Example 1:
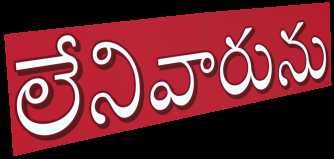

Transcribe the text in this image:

లేనివారును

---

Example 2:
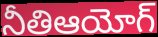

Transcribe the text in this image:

నీతిఆయోగ్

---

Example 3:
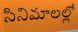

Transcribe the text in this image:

సినిమాలల్లో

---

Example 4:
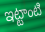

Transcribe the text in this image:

ఇట్టాంటి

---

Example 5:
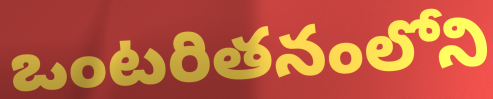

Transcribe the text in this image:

ఒంటరితనంలోని